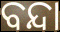
ବନ୍ଦା